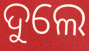
ଦୁଲେ